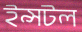
ইন্সটল